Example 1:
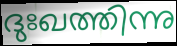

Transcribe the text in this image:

ദുഃഖത്തിന്നു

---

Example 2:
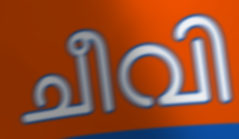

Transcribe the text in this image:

ചീവി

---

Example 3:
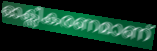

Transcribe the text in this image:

ഓക്സീകരണമാണ്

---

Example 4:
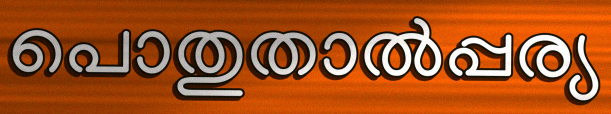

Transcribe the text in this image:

പൊതുതാൽപ്പര്യ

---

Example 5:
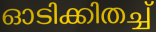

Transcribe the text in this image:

ഓടിക്കിതച്ച്